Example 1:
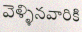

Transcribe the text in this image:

వెళ్ళినవారికి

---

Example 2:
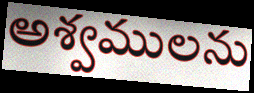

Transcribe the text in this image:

అశ్వములను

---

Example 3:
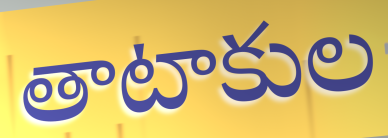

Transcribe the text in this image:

తాటాకుల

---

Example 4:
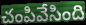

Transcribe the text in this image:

చంపివేసింది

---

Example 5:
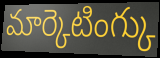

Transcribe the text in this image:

మార్కెటింగ్కు